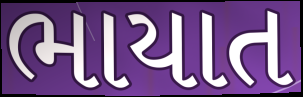
ભાયાત